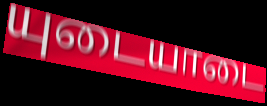
யுடையாடை